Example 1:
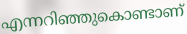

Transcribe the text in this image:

എന്നറിഞ്ഞുകൊണ്ടാണ്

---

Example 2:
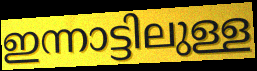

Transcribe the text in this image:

ഇന്നാട്ടിലുള്ള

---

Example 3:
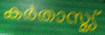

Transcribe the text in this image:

കർതാസ്മ്യ്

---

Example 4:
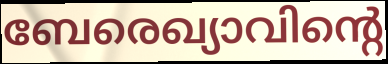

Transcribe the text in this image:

ബേരെഖ്യാവിന്റെ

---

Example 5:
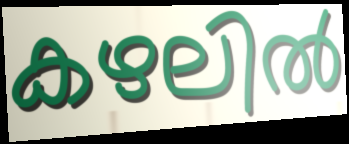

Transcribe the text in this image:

കഴലിൽ